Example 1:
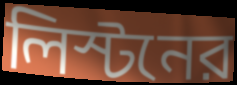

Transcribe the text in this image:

লিস্টনের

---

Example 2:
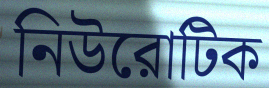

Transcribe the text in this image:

নিউরোটিক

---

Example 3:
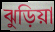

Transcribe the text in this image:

ঝুড়িয়া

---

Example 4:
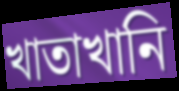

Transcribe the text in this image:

খাতাখানি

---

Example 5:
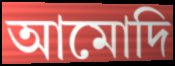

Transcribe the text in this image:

আমোদি